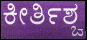
ಕೀರ್ತಿಶ್ಚ